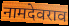
नामदेवराव